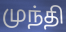
முந்தி